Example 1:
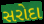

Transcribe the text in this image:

સરોદા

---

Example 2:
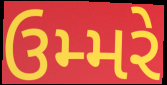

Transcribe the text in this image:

ઉમ્મરે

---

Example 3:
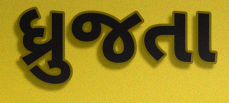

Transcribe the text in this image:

ધ્રુજતા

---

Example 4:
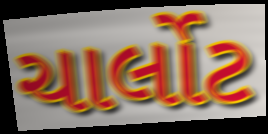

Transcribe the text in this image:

ચાર્લોટ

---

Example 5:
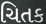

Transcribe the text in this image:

ચિતક